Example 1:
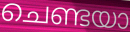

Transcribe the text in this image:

ചെണ്ടയാ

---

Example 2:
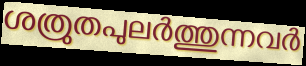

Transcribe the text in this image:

ശത്രുതപുലർത്തുന്നവർ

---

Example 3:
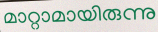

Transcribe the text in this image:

മാറ്റാമായിരുന്നു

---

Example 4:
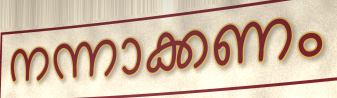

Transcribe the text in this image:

നന്നാക്കണം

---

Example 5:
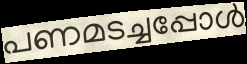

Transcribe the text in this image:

പണമടച്ചപ്പോൾ